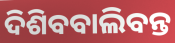
ଦିଶିବବାଲିବନ୍ତ